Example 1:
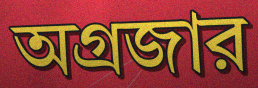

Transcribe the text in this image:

অগ্রজার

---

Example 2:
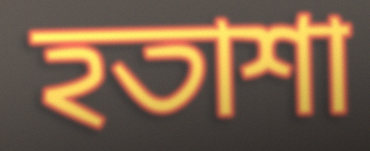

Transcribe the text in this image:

হতাশা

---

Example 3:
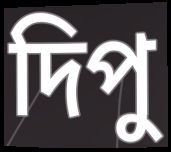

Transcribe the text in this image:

দিপু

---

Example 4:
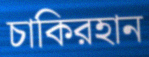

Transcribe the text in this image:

চাকিরহান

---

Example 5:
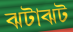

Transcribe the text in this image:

ঝটাঝট